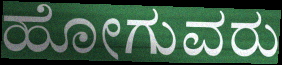
ಹೋಗುವರು